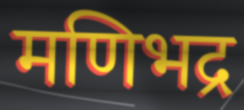
मणिभद्र